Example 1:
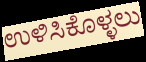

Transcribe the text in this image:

ಉಳಿಸಿಕೊಳ್ಳಲು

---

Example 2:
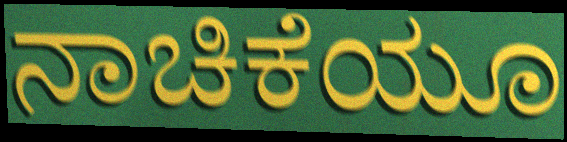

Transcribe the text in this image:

ನಾಚಿಕೆಯೂ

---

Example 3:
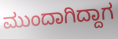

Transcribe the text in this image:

ಮುಂದಾಗಿದ್ದಾಗ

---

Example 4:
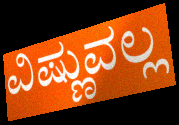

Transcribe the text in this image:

ವಿಷ್ಣುವಲ್ಲ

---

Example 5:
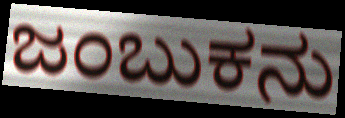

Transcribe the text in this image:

ಜಂಬುಕನು